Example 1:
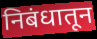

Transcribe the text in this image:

निबंधातून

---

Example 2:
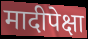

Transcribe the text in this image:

मादीपेक्षा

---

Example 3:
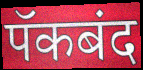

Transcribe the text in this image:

पॅकबंद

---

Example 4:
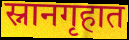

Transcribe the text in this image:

स्नानगृहात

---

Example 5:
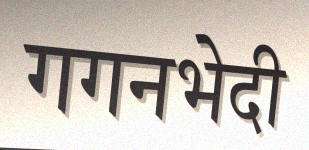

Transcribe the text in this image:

गगनभेदी